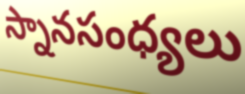
స్నానసంధ్యలు